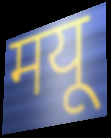
मयू